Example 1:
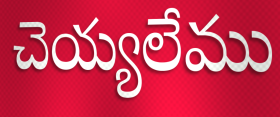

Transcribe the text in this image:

చెయ్యలేము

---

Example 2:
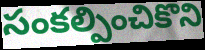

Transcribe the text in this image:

సంకల్పించికొని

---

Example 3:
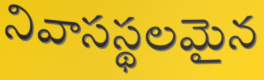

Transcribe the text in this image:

నివాసస్థలమైన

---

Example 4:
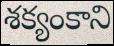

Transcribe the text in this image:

శక్యంకాని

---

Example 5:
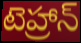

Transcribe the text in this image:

టెహ్రాన్